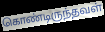
கொண்டிருந்தவள்